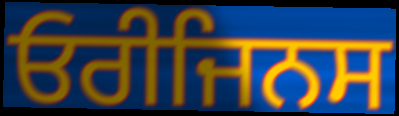
ਓਰੀਜਿਨਸ